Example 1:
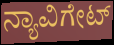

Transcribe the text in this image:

ನ್ಯಾವಿಗೇಟ್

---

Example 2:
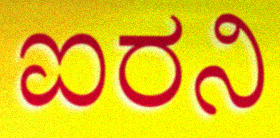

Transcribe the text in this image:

ಐರನಿ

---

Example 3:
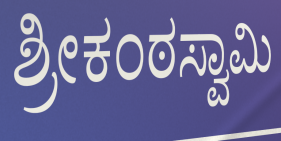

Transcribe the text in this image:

ಶ್ರೀಕಂಠಸ್ವಾಮಿ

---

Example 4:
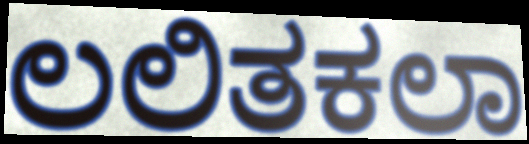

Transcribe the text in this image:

ಲಲಿತಕಲಾ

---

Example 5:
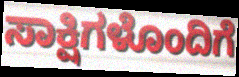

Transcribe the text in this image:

ಸಾಕ್ಷಿಗಳೊಂದಿಗೆ